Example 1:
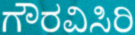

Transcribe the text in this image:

ಗೌರವಿಸಿರಿ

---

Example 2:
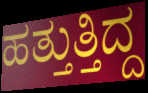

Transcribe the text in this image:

ಹತ್ತುತ್ತಿದ್ದ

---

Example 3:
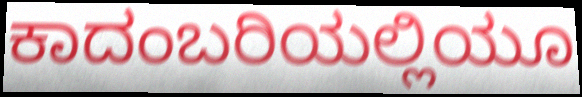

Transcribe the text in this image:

ಕಾದಂಬರಿಯಲ್ಲಿಯೂ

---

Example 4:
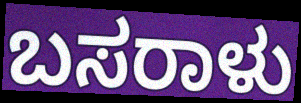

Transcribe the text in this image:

ಬಸರಾಳು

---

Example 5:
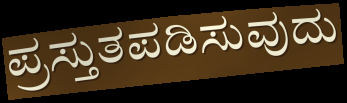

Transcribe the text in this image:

ಪ್ರಸ್ತುತಪಡಿಸುವುದು